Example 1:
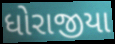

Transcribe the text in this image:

ધોરાજીયા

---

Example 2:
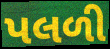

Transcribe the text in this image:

પલળી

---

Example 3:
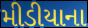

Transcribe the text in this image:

મીડીયાના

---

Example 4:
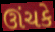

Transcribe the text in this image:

ઊંચકે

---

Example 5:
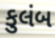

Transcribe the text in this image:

કુલંબ